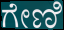
ಗೇಣಿ